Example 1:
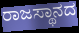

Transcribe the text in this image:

ರಾಜಸ್ಥಾನದ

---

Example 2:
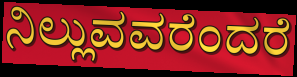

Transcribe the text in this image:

ನಿಲ್ಲುವವರೆಂದರೆ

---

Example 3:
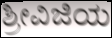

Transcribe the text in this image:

ಶ್ರೀವಿಜಿಯ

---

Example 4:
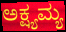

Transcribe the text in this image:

ಅಕ್ಷ್ಯಮ್ಯ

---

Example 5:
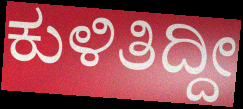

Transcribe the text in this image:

ಕುಳಿತಿದ್ದೀ